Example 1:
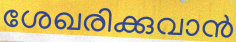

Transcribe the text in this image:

ശേഖരിക്കുവാൻ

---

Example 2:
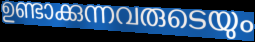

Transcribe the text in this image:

ഉണ്ടാക്കുന്നവരുടെയും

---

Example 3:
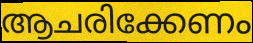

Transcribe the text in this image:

ആചരിക്കേണം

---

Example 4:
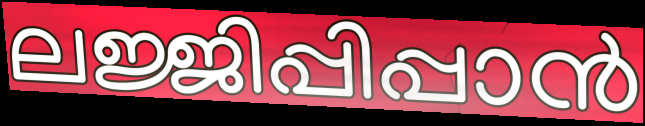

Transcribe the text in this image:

ലജ്ജിപ്പിപ്പാൻ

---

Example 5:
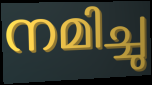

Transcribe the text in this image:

നമിച്ചു